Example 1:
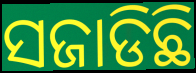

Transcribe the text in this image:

ସଜାଡିଛି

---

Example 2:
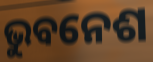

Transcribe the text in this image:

ଭୁବନେଶ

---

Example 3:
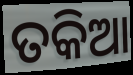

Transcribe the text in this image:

ତକିଆ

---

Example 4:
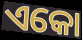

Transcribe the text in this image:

ଏକୋ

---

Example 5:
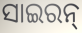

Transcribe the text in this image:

ସାଇରନ୍